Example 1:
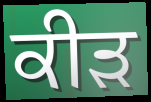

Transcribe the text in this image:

ਕੀੜ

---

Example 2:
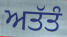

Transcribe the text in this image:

ਅਤੱਤੰ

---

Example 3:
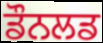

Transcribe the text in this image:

ਡੌਨਲਡ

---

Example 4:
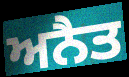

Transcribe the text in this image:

ਅਨੈਤ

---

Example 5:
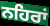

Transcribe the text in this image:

ਨਹਿਰਾਂ